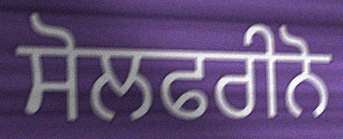
ਸੋਲਫਰੀਨੋ